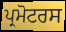
ਪ੍ਰਮੋਟਰਸ